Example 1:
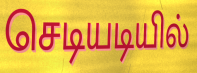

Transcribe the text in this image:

செடியடியில்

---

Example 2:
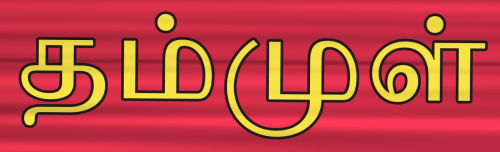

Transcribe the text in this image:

தம்முள்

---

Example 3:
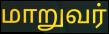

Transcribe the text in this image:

மாறுவர்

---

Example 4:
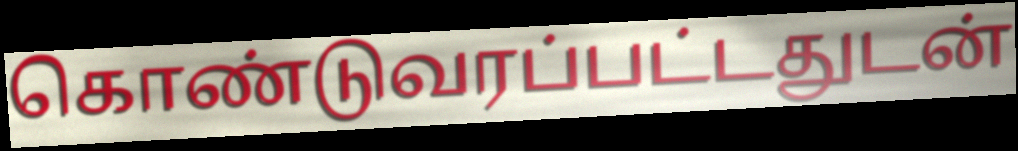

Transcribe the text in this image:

கொண்டுவரப்பட்டதுடன்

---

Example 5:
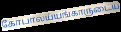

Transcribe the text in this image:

கோபாலய்யங்காருடைய